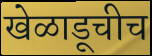
खेळाडूचीच